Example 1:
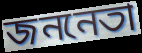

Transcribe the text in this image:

জননেতা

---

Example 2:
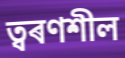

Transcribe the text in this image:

ত্বৰণশীল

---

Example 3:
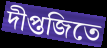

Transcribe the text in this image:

দীপ্তজিতে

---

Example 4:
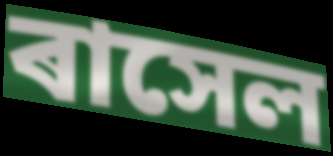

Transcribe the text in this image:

ৰাসেল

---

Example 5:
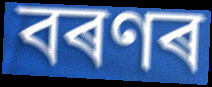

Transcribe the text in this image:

বৰণৰ